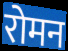
रोमन